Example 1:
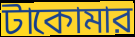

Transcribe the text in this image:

টাকোমার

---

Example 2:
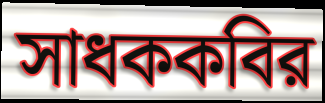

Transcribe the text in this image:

সাধককবির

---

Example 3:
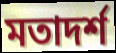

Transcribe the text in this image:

মতাদর্শ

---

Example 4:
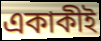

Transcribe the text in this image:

একাকীই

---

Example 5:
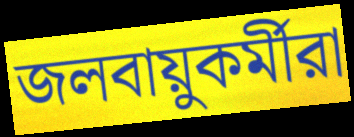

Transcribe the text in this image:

জলবায়ুকর্মীরা